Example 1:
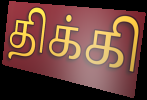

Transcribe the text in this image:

திக்கி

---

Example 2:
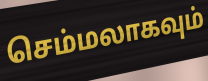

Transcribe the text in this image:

செம்மலாகவும்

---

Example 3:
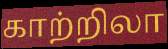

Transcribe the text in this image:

காற்றிலா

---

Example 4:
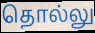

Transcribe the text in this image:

தொல்லு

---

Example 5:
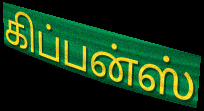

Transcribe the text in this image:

கிப்பன்ஸ்